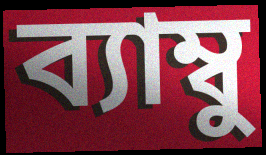
ব্যাম্বু